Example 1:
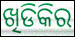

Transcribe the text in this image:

ଖିଡିକିର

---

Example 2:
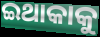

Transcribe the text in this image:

ଇଥାକାକୁ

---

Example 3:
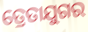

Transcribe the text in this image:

ତ୍ରେତାଯୁଗର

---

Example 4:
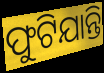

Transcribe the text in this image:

ଫୁଟିଯାନ୍ତି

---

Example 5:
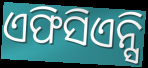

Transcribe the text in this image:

ଏଫିସିଏନ୍ସି